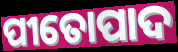
ପୀତୋପାଦ